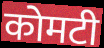
कोमटी